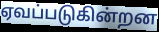
ஏவப்படுகின்றன